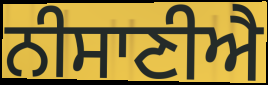
ਨੀਸਾਣੀਐ